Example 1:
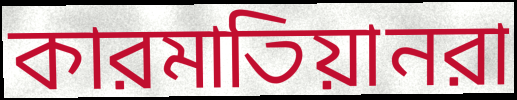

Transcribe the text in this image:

কারমাতিয়ানরা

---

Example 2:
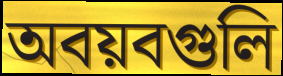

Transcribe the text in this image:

অবয়বগুলি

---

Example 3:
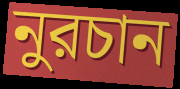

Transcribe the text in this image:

নুরচান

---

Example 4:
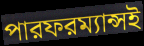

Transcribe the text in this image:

পারফরম্যান্সই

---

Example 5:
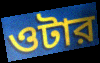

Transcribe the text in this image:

ওটার